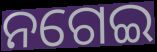
ନଗେଇ